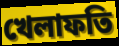
খেলাফতি